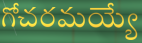
గోచరమయ్యే